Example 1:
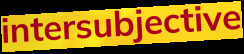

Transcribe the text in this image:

intersubjective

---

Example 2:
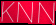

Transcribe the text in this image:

KNN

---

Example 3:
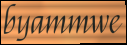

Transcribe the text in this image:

byammwe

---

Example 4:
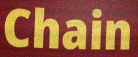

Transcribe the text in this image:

Chain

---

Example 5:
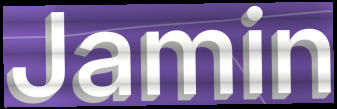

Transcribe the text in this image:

Jamin